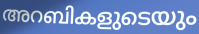
അറബികളുടെയും